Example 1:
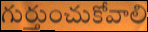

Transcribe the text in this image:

గుర్తుంచుకోవాలి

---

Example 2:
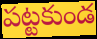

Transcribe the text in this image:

పట్టకుండ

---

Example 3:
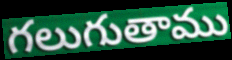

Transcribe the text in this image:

గలుగుతాము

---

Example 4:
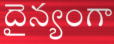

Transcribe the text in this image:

దైన్యంగా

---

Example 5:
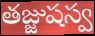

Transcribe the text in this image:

తజ్జుషస్వ